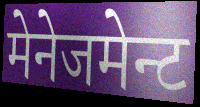
मेनेजमेन्ट